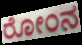
ರೋಂನ